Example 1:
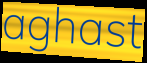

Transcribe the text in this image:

aghast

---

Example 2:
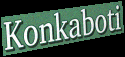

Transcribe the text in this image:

Konkaboti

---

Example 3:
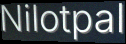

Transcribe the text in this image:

Nilotpal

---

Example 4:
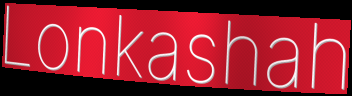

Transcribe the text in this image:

Lonkashah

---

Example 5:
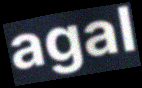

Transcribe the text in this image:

agal